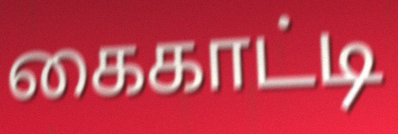
கைகாட்டி